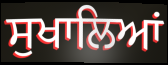
ਸੁਖਾਲਿਆਂ